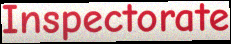
Inspectorate